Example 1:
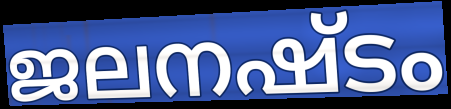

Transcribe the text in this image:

ജലനഷ്ടം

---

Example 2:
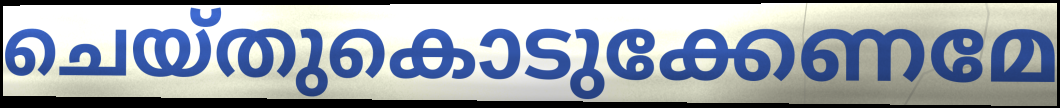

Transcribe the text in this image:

ചെയ്തുകൊടുക്കേണമേ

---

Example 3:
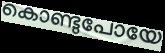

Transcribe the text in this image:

കൊണ്ടുപോയേ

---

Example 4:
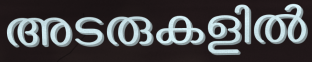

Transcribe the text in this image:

അടരുകളിൽ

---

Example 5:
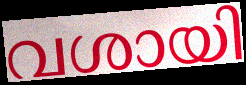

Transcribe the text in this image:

വശായി